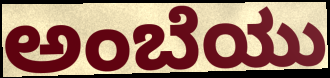
ಅಂಬೆಯು